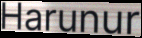
Harunur